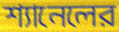
শ্যানেলের